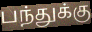
பந்துக்கு